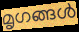
മൃഗങ്ങൾ